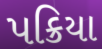
પક્રિયા